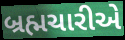
બ્રહ્મચારીએ